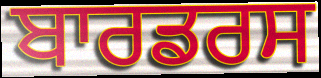
ਬਾਰਡਰਸ